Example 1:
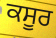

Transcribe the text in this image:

ਕਸੂਰ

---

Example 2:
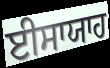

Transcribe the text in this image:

ਈਸਾਯਾਹ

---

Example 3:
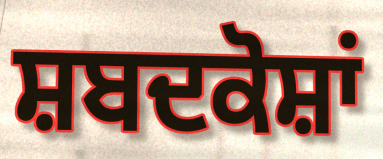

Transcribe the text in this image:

ਸ਼ਬਦਕੋਸ਼ਾਂ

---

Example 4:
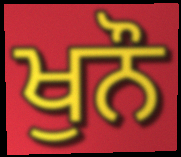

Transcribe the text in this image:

ਖੁਨੌ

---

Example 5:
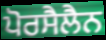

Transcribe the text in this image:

ਪੋਰਸੈਲੈਨ